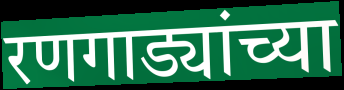
रणगाड्यांच्या